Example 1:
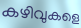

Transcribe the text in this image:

കഴിവുകളെ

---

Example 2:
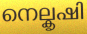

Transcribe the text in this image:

നെല്കൃഷി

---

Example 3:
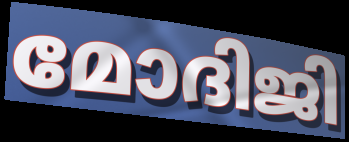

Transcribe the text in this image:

മോദിജി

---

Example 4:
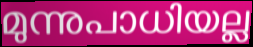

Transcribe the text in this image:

മുന്നുപാധിയല്ല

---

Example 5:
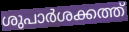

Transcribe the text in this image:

ശുപാർശക്കത്ത്